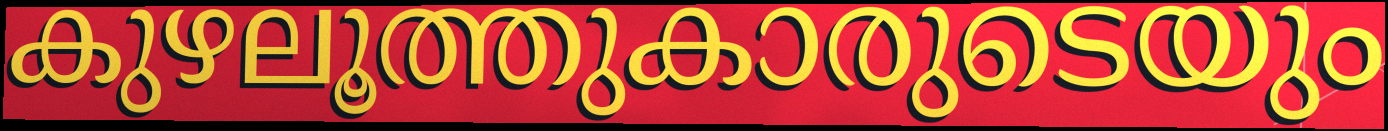
കുഴലൂത്തുകാരുടെയും